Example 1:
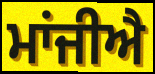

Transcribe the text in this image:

ਮਾਂਜੀਐ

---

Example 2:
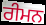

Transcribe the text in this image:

ਰੀਮਨ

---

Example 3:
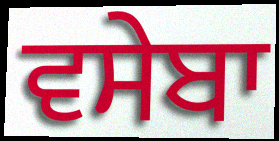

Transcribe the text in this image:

ਵਸੇਬਾ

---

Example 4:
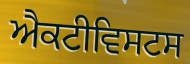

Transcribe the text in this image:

ਐਕਟੀਵਿਸਟਸ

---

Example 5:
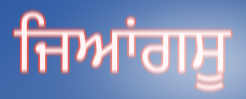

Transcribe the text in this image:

ਜਿਆਂਗਸੂ